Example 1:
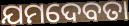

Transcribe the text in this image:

ଯମଦେବତା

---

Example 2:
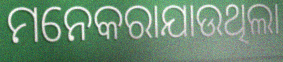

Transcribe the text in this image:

ମନେକରାଯାଉଥିଲା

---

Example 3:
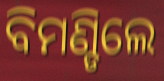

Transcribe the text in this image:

ବିମଣ୍ଡିଲେ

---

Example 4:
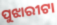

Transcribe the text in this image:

ପୁଝାରୀଟା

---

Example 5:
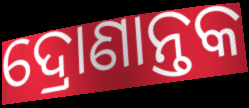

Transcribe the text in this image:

ଦ୍ରୋଣାନ୍ତକ